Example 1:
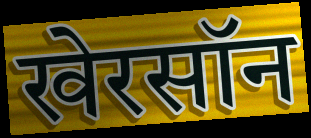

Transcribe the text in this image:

खेरसॉन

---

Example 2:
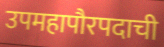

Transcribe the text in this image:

उपमहापौरपदाची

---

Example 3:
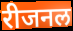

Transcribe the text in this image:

रीजनल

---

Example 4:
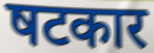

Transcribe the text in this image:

षटकार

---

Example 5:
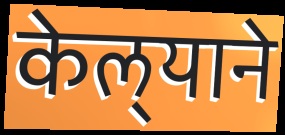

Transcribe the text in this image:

केल्याने